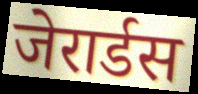
जेरार्डस